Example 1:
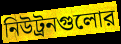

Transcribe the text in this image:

নিউট্রনগুলোর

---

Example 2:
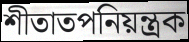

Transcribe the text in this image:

শীতাতপনিয়ন্ত্রক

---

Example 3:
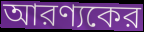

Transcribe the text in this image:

আরণ্যকের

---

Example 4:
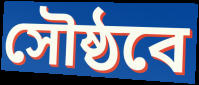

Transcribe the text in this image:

সৌষ্ঠবে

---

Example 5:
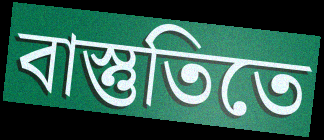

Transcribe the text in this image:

বাস্তুতিতে